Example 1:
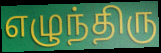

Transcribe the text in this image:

எழுந்திரு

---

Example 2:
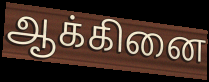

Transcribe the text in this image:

ஆக்கினை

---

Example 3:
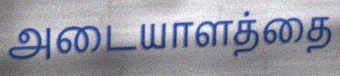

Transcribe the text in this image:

அடையாளத்தை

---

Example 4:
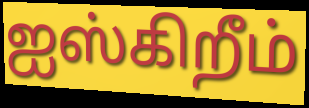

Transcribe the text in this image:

ஐஸ்கிறீம்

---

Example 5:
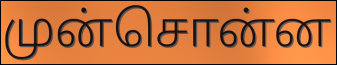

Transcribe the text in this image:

முன்சொன்ன